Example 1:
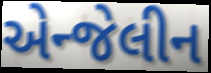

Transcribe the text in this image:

એન્જેલીન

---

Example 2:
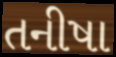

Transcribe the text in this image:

તનીષા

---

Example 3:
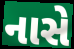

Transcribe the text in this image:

નાસે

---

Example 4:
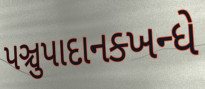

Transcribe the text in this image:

પઞ્ચુપાદાનક્ખન્ધે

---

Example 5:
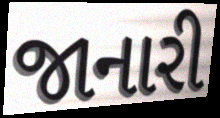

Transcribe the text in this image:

જાનારી